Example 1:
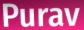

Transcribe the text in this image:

Purav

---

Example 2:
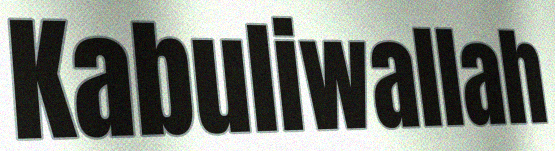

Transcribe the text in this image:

Kabuliwallah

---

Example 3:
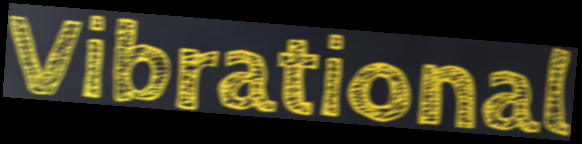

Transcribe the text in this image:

Vibrational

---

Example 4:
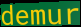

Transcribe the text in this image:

demur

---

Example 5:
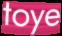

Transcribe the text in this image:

toye